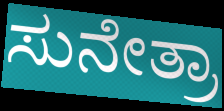
ಸುನೇತ್ರಾ